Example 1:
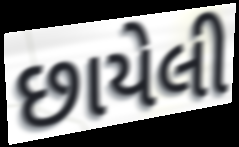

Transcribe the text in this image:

છાયેલી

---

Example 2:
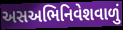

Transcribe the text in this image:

અસઅભિનિવેશવાળું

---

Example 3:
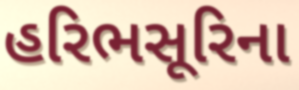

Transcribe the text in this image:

હરિભસૂરિના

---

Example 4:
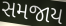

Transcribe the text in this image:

સમજાય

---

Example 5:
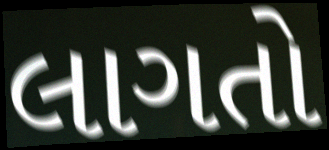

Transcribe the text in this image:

લાગતો